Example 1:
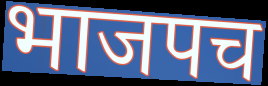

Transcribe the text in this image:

भाजपच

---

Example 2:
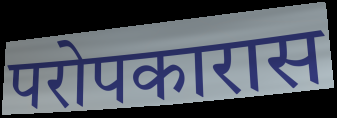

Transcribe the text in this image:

परोपकारास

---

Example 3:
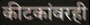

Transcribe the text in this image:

कीटकांवरही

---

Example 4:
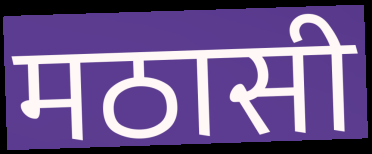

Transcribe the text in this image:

मठासी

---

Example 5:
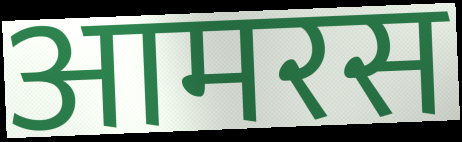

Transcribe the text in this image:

आमरस